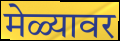
मेळ्यावर